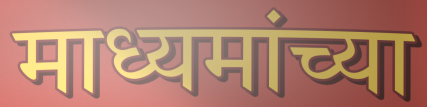
माध्यमांच्या